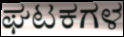
ಘಟಕಗಳ